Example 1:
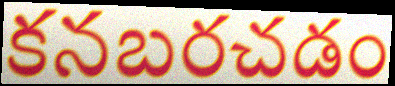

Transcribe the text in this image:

కనబరచడం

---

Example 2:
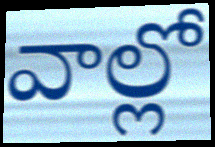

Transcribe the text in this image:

వాల్లో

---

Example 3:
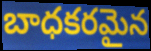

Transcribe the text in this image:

బాధకరమైన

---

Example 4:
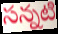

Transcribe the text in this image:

సన్నటి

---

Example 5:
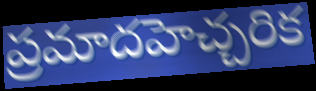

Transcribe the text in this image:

ప్రమాదహెచ్చరిక